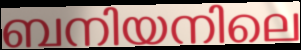
ബനിയനിലെ